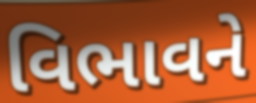
વિભાવને